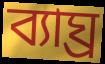
ব্যাঘ্র